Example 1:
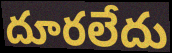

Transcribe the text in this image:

దూరలేదు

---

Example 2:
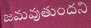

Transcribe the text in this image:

జమవుతుందని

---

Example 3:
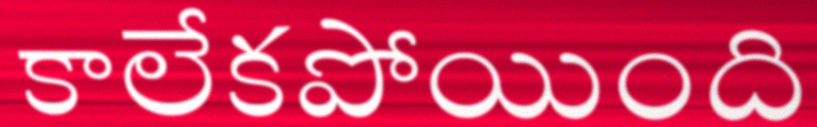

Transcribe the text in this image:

కాలేకపోయింది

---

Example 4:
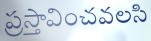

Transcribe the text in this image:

ప్రస్తావించవలసి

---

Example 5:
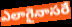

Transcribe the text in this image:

ఎలాగైనాసరే